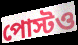
পোস্টও